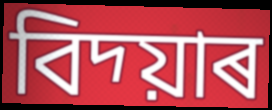
বিদ্য়াৰ